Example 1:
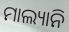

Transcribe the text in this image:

ମାଲ୍ୟାନି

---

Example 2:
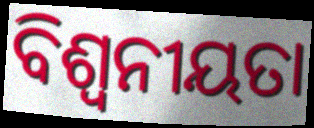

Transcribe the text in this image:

ବିଶ୍ୱନୀୟତା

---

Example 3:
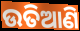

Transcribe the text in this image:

ଉତିଆଣି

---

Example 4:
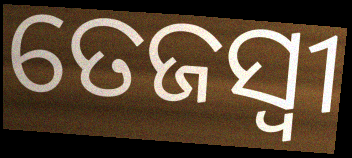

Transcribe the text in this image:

ତେଜସ୍ବୀ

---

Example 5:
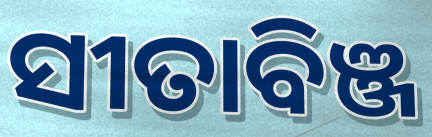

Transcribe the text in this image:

ସୀତାବିଞ୍ଜ